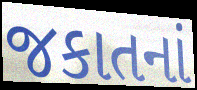
જકાતનાં